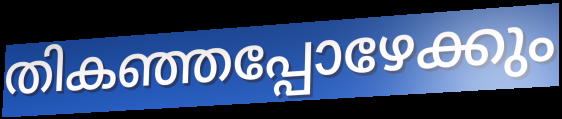
തികഞ്ഞപ്പോഴേക്കും